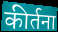
कीर्तना